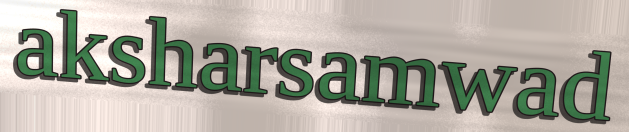
aksharsamwad